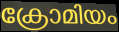
ക്രോമിയം